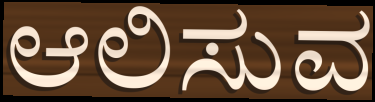
ಆಲಿಸುವ